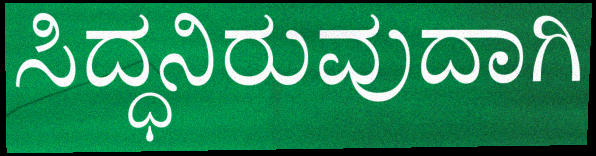
ಸಿದ್ಧನಿರುವುದಾಗಿ